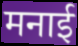
मनाई